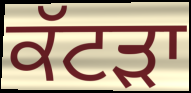
ਕੱਟੜਾ